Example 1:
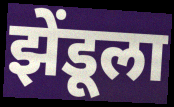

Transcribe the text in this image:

झेंडूला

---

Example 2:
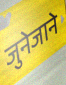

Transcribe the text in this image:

जुनेजाने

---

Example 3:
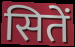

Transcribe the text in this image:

सितें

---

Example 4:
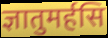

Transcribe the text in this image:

ज्ञातुमर्हसि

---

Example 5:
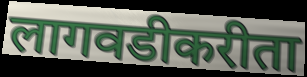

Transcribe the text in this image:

लागवडीकरीता